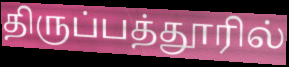
திருப்பத்தூரில்